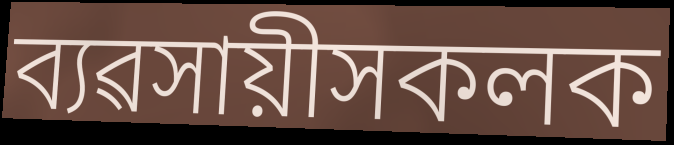
ব্যৱসায়ীসকলক